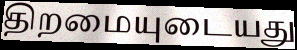
திறமையுடையது